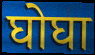
घोघा